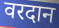
वरदान